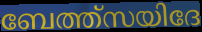
ബേത്ത്സയിദേ